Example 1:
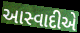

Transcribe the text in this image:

આસ્વાદીએ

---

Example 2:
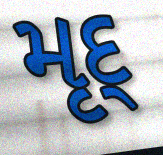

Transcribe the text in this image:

મૃદ્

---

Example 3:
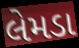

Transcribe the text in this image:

લેમડા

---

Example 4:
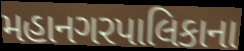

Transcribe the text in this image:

મહાનગરપાલિકાના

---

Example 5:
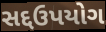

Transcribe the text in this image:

સદ્દઉપયોગ